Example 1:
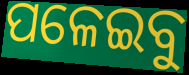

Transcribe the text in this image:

ପଳେଇବୁ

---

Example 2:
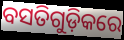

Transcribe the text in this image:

ବସତିଗୁଡ଼ିକରେ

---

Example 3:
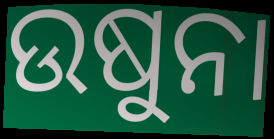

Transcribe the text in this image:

ଉଷୁନା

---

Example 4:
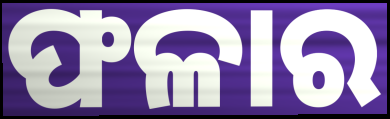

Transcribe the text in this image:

ଫଳାର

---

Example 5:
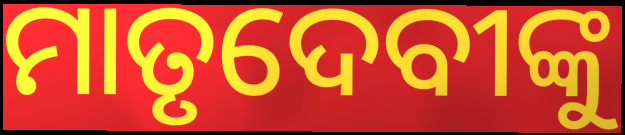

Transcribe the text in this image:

ମାତୃଦେବୀଙ୍କୁ